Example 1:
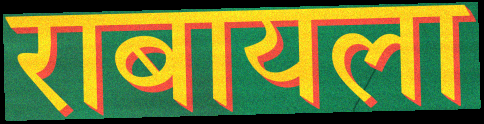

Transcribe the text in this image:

राबायला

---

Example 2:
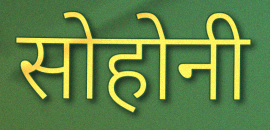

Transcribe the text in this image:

सोहोनी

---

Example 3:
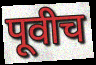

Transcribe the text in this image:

पूवीच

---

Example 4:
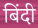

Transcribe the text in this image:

बिंदी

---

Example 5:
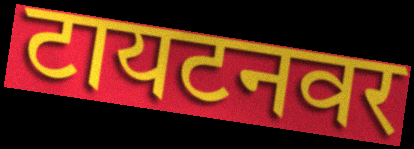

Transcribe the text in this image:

टायटनवर